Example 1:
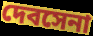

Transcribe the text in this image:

দেবসেনা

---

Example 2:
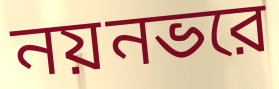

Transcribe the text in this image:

নয়নভরে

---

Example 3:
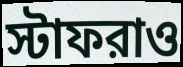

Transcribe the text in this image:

স্টাফরাও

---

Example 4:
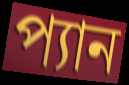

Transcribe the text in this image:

প্যান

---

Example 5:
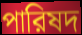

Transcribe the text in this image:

পারিষদ